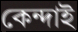
কেন্দাই